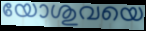
യോശുവയെ